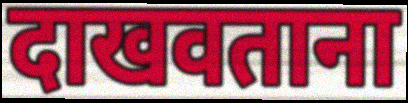
दाखवताना